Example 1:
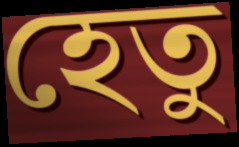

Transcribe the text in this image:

হেতু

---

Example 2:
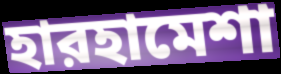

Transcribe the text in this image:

হারহামেশা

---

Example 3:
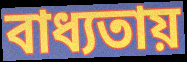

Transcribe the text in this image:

বাধ্যতায়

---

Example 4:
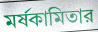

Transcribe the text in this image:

মর্ষকামিতার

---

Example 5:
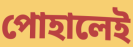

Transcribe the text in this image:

পোহালেই